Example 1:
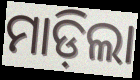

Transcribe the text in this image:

ମାଡ଼ିଲା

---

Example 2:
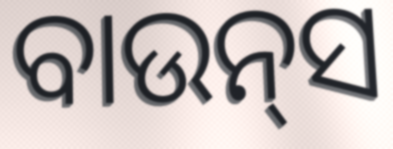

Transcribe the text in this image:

ବାଉନ୍‌ସ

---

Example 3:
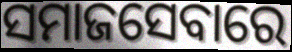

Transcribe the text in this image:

ସମାଜସେବାରେ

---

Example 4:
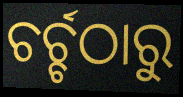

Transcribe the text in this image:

ଚର୍ଚ୍ଚଠାରୁ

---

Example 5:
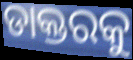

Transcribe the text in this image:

ଡାକ୍ତରକୁ